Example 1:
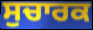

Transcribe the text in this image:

ਸੁਚਾਰਕ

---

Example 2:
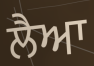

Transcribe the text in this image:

ਲੈਆ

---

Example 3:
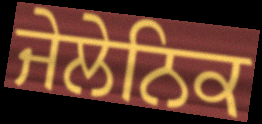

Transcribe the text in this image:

ਜੇਲੇਨਿਕ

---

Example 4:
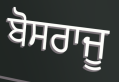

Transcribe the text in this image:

ਬੋਸਰਾਜੂ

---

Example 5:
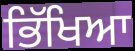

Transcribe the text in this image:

ਭਿੱਖਿਆ